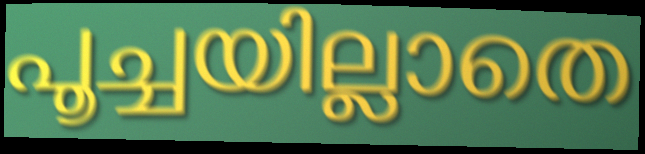
പൂച്ചയില്ലാതെ